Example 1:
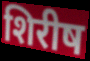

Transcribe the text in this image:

शिरीष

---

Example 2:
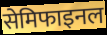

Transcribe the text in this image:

सेमिफाइनल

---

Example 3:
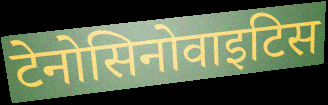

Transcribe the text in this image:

टेनोसिनोवाइटिस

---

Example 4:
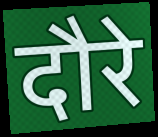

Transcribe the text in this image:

दौरे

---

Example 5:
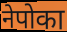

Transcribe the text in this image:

नेपोका